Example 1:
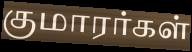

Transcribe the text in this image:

குமாரர்கள்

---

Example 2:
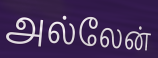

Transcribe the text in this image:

அல்லேன்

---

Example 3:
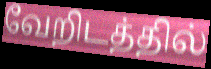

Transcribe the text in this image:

வேறிடத்தில்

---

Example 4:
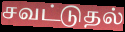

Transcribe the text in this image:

சவட்டுதல்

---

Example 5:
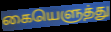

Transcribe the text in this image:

கையெளுத்து